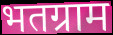
भतग्राम